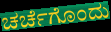
ಚರ್ಚೆಗೊಂದು